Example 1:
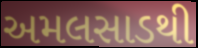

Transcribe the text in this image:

અમલસાડથી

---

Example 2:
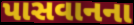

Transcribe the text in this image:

પાસવાનના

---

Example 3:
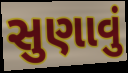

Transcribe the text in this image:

સુણાવું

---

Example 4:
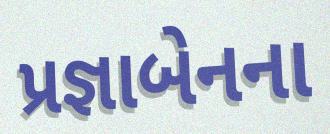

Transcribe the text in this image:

પ્રજ્ઞાબેનના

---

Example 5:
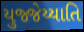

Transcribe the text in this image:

યુજ્જેય્યાતિ